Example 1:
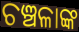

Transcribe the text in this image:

ଚଞ୍ଚଳାଙ୍କ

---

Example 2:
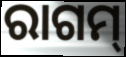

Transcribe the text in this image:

ରାଗମ୍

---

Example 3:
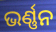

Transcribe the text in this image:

ଭର୍ଣ୍ଣନ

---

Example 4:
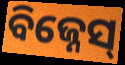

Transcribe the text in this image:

ବିଜ୍ନେସ୍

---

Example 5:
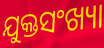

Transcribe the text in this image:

ଯୁକ୍ତସଂଖ୍ୟା